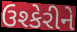
ઉશ્કેરીને